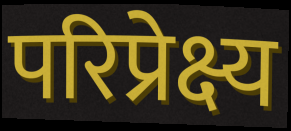
परिप्रेक्ष्य